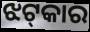
ଝଟ୍‍କାର